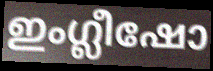
ഇംഗ്ലീഷോ